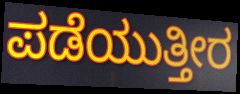
ಪಡೆಯುತ್ತೀರ